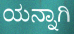
ಯನ್ನಾಗಿ